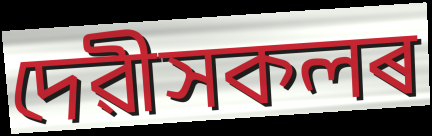
দেৱীসকলৰ